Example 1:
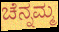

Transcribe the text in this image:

ಚೆನ್ನಮ್ಮ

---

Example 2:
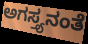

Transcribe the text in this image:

ಅಗಸ್ತ್ಯನಂತೆ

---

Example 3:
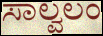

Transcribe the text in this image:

ಸಾಲ್ವಲಂ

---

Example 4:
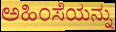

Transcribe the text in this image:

ಅಹಿಂಸೆಯನ್ನು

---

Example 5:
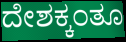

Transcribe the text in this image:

ದೇಶಕ್ಕಂತೂ